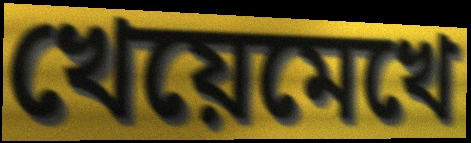
খেয়েমেখে